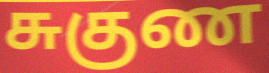
சுகுண